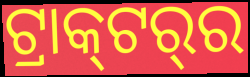
ଟ୍ରାକ୍‍ଟର୍‍ର